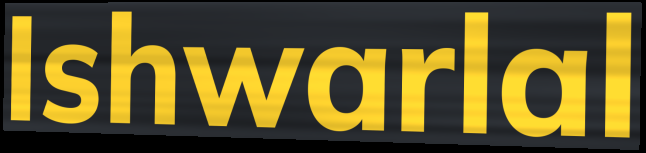
Ishwarlal